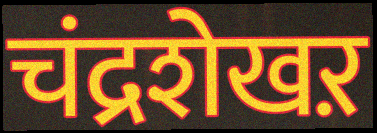
चंद्रशेखऱ